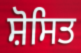
ਸ਼ੋਸਿਤ